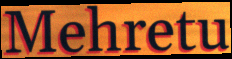
Mehretu